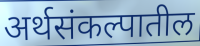
अर्थसंकल्पातील